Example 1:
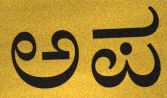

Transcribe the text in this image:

ಅಪ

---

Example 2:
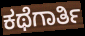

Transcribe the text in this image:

ಕಥೆಗಾರ್ತಿ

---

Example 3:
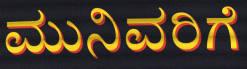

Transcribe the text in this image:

ಮುನಿವರಿಗೆ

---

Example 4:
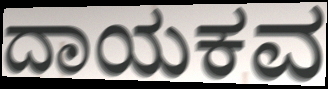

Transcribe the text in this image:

ದಾಯಕವ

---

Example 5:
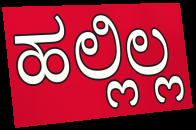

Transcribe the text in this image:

ಹಲ್ಲಿಲ್ಲ